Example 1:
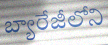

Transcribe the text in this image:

బ్యారేజీలోని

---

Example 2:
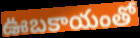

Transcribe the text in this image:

ఊబకాయంతో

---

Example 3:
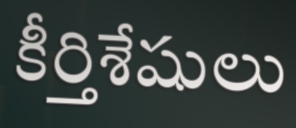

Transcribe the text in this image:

కీర్తిశేషులు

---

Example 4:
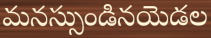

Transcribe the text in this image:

మనస్సుండినయెడల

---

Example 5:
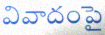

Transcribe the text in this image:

వివాదంపై